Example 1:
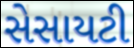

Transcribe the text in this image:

સેસાયટી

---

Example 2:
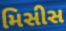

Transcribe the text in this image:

મિસીસ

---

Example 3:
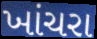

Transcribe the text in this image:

ખાંચરા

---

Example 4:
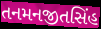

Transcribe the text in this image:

તનમનજીતસિંહ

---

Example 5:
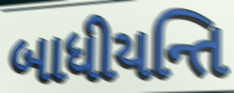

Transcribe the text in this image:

બાધીયન્તિ